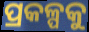
ପ୍ରକଳ୍ପକୁ